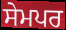
ਸੇਮਪਰ